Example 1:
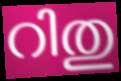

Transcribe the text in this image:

റിതു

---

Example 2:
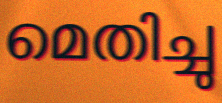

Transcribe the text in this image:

മെതിച്ചു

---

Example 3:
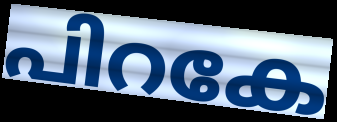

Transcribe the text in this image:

പിറകേ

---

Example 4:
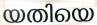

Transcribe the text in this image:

യതിയെ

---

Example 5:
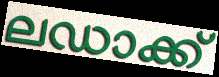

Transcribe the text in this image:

ലഡാക്ക്